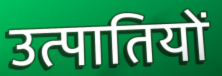
उत्पातियों